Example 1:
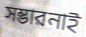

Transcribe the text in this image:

সম্ভাৱনাই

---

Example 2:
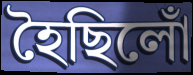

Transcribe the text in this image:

হৈছিলোঁ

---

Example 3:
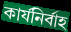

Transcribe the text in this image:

কাৰ্যনিৰ্বাহ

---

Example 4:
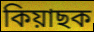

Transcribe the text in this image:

কিয়াছক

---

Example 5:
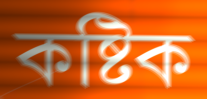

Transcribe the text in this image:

কষ্টিক